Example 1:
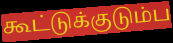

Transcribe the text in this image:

கூட்டுக்குடும்ப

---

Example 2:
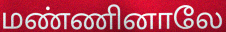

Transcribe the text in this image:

மண்ணினாலே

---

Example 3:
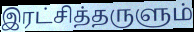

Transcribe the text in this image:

இரட்சித்தருளும்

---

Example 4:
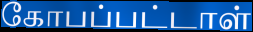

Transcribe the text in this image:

கோபப்பட்டாள்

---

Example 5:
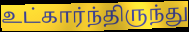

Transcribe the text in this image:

உட்கார்ந்திருந்து